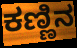
ಕಣ್ಣಿನ